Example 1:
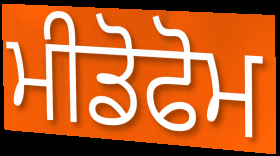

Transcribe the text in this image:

ਮੀਡੋਫੋਮ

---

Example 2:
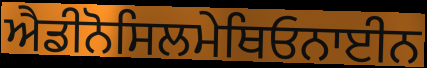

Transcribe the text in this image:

ਐਡੀਨੋਸਿਲਮੇਥਿਓਨਾਈਨ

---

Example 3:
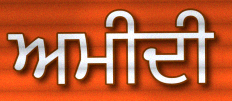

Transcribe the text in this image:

ਅਮੀਦੀ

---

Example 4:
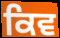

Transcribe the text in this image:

ਕਿਵ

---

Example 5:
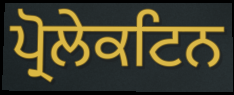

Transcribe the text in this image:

ਪ੍ਰੋਲੇਕਟਿਨ